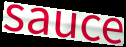
sauce